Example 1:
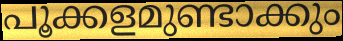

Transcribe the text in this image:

പൂക്കളമുണ്ടാക്കും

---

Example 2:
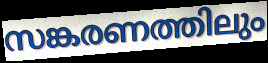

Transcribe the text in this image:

സങ്കരണത്തിലും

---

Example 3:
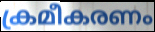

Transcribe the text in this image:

ക്രമീകരണം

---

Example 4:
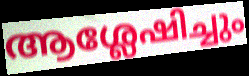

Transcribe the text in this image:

ആശ്ലേഷിച്ചും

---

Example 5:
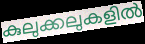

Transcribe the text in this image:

കുലുക്കലുകളിൽ